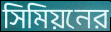
সিমিয়নের